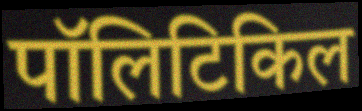
पॉलिटिकिल